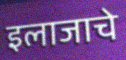
इलाजाचे